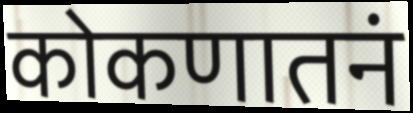
कोकणातनं